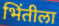
भिंतीला